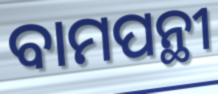
ବାମପନ୍ଥୀ